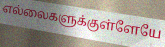
எல்லைகளுக்குள்ளேயே